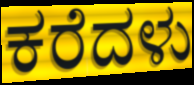
ಕರೆದಳು